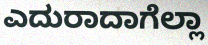
ಎದುರಾದಾಗೆಲ್ಲಾ